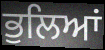
ਭੁਲਿਆਂ